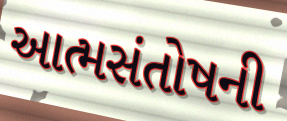
આત્મસંતોષની